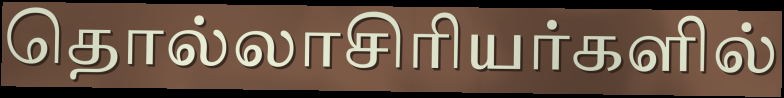
தொல்லாசிரியர்களில்